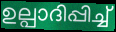
ഉല്പാദിപ്പിച്ച്